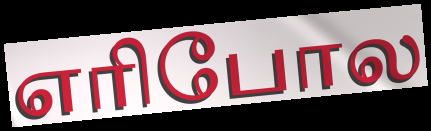
எரிபோல